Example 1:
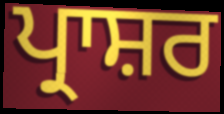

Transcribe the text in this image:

ਪ੍ਰਾਸ਼ਰ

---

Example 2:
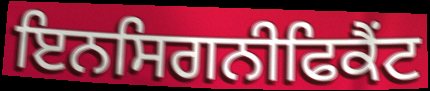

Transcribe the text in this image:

ਇਨਸਿਗਨੀਫਿਕੈਂਟ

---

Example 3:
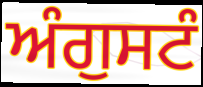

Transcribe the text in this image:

ਅੰਗੁਸਟੰ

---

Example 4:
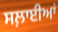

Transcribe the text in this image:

ਸਲ਼ਾਈਆਂ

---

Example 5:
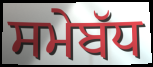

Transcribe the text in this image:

ਸਮੇਬੱਧ